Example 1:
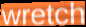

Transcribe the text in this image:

wretch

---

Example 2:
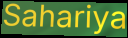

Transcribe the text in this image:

Sahariya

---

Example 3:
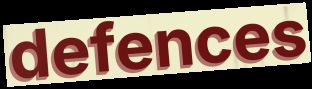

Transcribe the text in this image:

defences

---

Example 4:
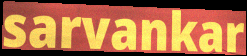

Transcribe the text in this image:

sarvankar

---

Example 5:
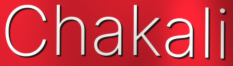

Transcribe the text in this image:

Chakali